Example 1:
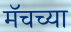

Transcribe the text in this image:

मॅचच्या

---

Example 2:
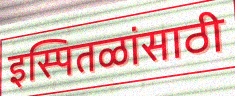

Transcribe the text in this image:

इस्पितळांसाठी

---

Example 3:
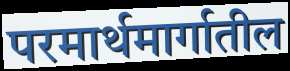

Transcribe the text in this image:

परमार्थमार्गातील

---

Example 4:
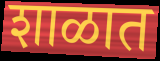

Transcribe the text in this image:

शाळात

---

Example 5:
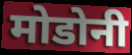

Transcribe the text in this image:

मोडोनी